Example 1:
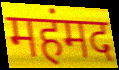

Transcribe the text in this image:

महंमद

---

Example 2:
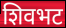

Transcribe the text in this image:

शिवभट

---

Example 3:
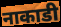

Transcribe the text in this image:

नाकाडी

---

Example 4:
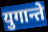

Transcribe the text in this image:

युगान्ते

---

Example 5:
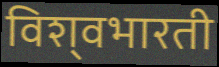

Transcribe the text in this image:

विश्वभारती